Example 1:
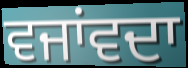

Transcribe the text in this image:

ਵਜਾਂਵਦਾ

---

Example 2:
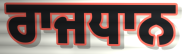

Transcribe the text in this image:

ਰਾਜਧਾਨ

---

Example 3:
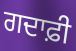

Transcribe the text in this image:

ਗਦਾਫ਼ੀ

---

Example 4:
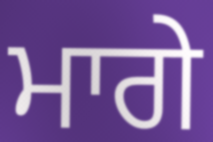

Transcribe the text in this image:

ਮਾਗੇ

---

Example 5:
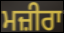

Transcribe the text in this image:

ਮਜ਼ੀਰਾ